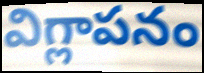
విగ్లాపనం